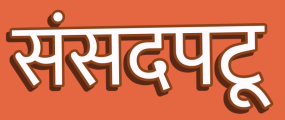
संसदपटू